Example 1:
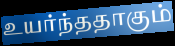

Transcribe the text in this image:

உயர்ந்ததாகும்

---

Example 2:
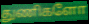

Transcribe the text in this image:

துணிகளோ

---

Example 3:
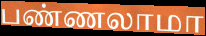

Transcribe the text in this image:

பண்ணலாமா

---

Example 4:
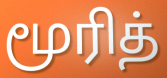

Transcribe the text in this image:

மூரித்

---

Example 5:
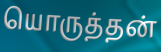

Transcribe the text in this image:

யொருத்தன்